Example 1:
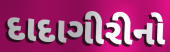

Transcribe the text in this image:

દાદાગીરીનો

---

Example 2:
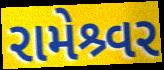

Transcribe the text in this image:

રામેશ્ર્વર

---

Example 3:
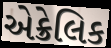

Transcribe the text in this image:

એક્રેલિક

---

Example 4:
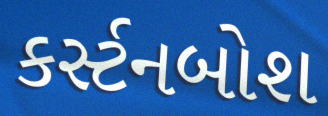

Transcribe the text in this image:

કર્સ્ટનબોશ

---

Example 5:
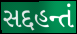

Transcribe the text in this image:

સદ્દહન્તં